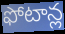
ఫోటాన్ల